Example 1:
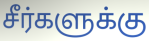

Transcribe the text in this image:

சீர்களுக்கு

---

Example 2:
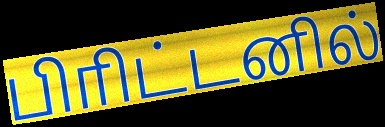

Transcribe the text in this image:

பிரிட்டனில்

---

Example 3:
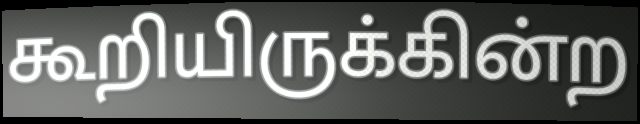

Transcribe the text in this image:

கூறியிருக்கின்ற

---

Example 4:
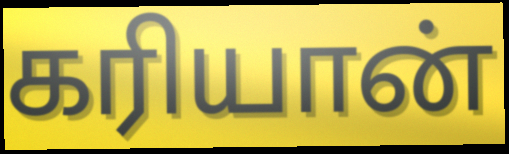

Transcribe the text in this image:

கரியான்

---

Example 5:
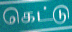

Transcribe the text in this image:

கெட்டு